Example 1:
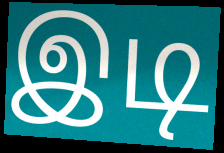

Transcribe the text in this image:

இடி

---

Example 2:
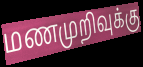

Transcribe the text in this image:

மணமுறிவுக்கு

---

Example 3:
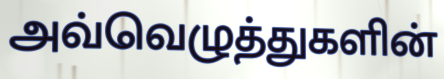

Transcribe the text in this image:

அவ்வெழுத்துகளின்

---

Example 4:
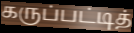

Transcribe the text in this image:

கருப்பட்டித்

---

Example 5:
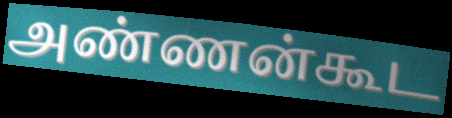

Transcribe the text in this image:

அண்ணன்கூட